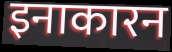
इनाकारन